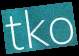
tko